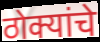
ठोक्यांचे